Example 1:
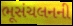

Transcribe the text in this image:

ભૂસંચલનની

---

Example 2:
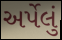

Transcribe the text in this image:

અર્પેલું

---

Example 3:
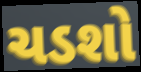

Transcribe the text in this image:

ચડશો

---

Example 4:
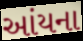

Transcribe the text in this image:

આંયના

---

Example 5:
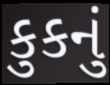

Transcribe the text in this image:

કુકનું